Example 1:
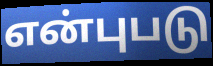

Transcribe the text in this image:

என்புபடு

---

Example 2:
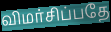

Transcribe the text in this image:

விமர்சிப்பதே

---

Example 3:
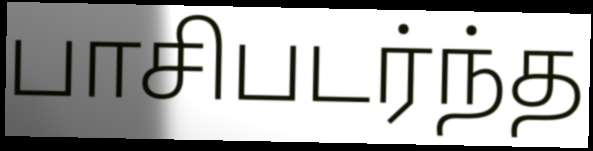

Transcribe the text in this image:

பாசிபடர்ந்த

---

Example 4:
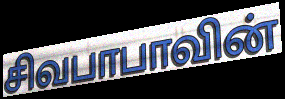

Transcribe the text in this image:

சிவபாபாவின்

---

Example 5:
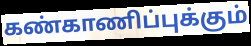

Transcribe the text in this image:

கண்காணிப்புக்கும்